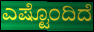
ಎಷ್ಟೊಂದಿದೆ